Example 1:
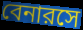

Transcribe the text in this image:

বেনারসে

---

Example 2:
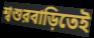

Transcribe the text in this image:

শ্বশুরবাড়িতেই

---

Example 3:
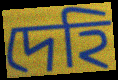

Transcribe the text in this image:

দেহি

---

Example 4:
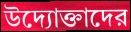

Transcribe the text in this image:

উদ্যোক্তাদের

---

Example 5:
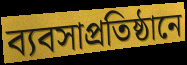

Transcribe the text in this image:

ব্যবসাপ্রতিষ্ঠানে